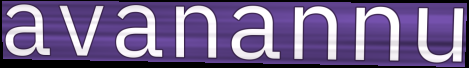
avanannu